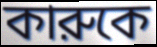
কারুকে